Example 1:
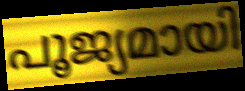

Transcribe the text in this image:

പൂജ്യമായി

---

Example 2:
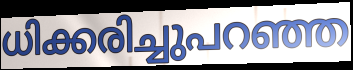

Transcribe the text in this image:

ധിക്കരിച്ചുപറഞ്ഞ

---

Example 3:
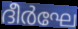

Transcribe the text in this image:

ദീർഘേ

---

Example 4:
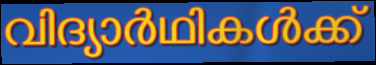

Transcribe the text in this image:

വിദ്യാർഥികൾക്ക്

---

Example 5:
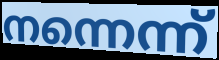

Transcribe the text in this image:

നന്നെന്ന്